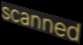
scanned